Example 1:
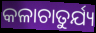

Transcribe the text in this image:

କଳାଚାତୁର୍ଯ୍ୟ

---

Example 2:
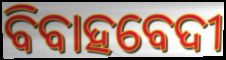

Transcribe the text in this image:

ବିବାହବେଦୀ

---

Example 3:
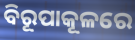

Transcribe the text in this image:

ବିରୂପାକୂଳରେ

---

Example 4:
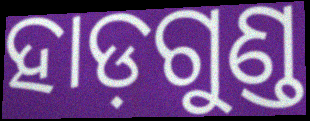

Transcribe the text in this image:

ହାଡ଼ଗୁଣ୍ଡ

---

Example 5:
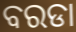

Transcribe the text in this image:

ବରଡା